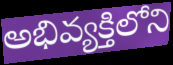
అభివ్యక్తిలోని